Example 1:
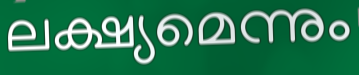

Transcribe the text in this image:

ലക്ഷ്യമെന്നും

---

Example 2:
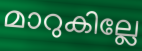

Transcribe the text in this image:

മാറുകില്ലേ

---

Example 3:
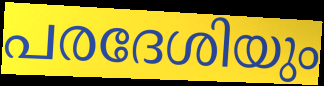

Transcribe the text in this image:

പരദേശിയും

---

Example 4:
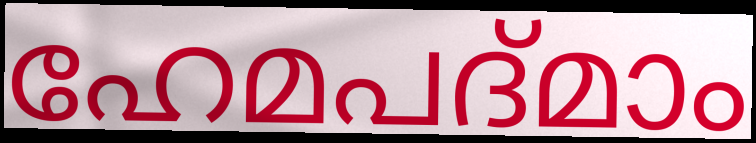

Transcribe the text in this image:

ഹേമപദ്മാം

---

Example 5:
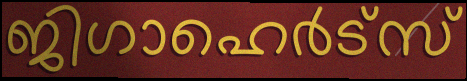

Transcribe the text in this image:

ജിഗാഹെർട്സ്